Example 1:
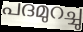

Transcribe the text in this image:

പദമുറച്ചു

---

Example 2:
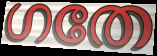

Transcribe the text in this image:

ഗതേ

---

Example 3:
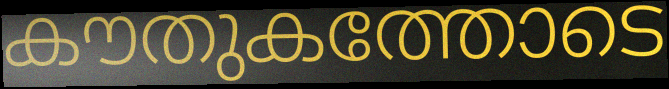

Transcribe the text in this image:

കൗതുകത്തോടെ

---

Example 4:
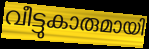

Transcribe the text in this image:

വീട്ടുകാരുമായി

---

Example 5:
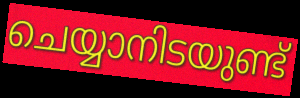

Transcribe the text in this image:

ചെയ്യാനിടയുണ്ട്